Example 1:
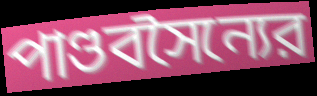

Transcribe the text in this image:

পাণ্ডবসৈন্যের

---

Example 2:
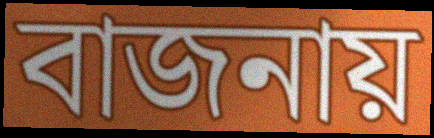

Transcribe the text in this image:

বাজনায়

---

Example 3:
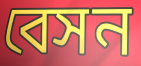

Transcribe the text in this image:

বেসন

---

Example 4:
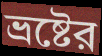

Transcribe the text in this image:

ভ্রষ্টের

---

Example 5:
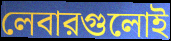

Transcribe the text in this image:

লেবারগুলোই